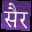
सैर